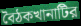
বৈঠকখানাটির